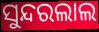
ସୁନ୍ଦରଲାଲ